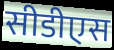
सीडीएस